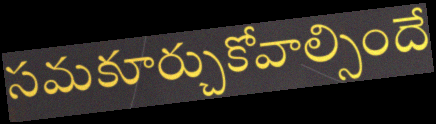
సమకూర్చుకోవాల్సిందే